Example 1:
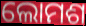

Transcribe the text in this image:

ଲୋମଶ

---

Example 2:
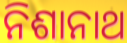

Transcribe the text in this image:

ନିଶାନାଥ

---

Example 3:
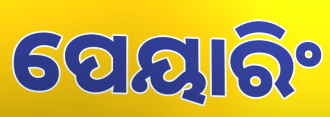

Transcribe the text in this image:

ପେୟାରିଂ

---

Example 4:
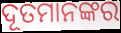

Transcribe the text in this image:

ଦୂତମାନଙ୍କର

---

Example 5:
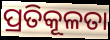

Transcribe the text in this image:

ପ୍ରତିକୂଳତା